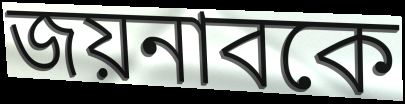
জয়নাবকে